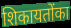
शिकायतोंका